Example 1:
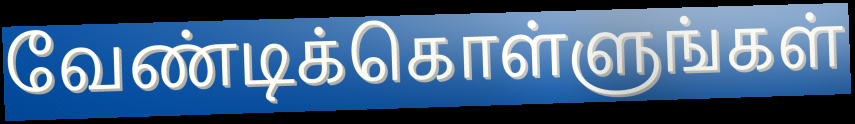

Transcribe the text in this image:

வேண்டிக்கொள்ளுங்கள்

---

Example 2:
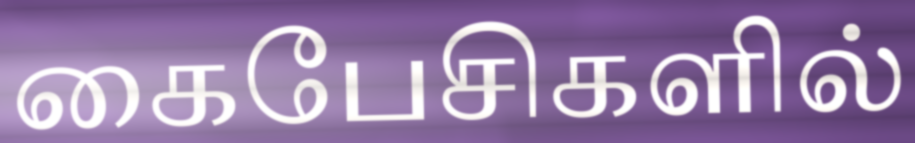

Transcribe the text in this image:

கைபேசிகளில்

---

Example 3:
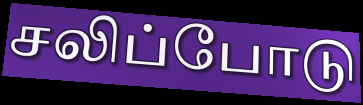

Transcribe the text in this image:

சலிப்போடு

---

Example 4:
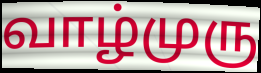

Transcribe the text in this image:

வாழ்முரு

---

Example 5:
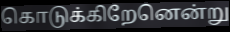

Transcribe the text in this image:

கொடுக்கிறேனென்று